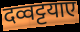
दव्वट्टयाए